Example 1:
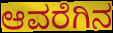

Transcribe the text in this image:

ಆವರೆಗಿನ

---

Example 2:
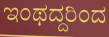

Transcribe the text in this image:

ಇಂಥದ್ದರಿಂದ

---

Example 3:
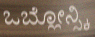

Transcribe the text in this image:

ಒಬ್ಲೋನ್ಸ್ಕಿ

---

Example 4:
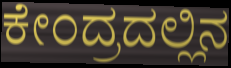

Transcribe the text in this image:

ಕೇಂದ್ರದಲ್ಲಿನ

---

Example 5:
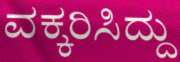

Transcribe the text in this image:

ವಕ್ಕರಿಸಿದ್ದು